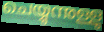
ചെയ്യുന്നുള്ളു